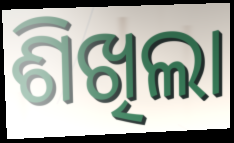
ଶିଖିଲା